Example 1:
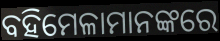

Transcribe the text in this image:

ବହିମେଳାମାନଙ୍କରେ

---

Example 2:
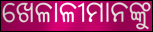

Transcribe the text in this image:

ଖେଳାଳୀମାନଙ୍କୁ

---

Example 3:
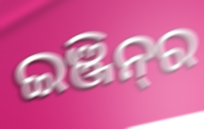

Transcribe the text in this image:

ଇଞ୍ଜିନ୍‍ର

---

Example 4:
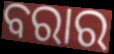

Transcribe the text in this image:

ବରାର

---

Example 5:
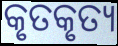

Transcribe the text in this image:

କୃତକୃତ୍ୟ